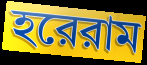
হরেরাম